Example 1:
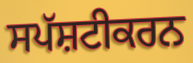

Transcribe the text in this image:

ਸਪੱਸ਼ਟੀਕਰਨ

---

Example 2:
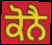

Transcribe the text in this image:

ਕੋਨੈ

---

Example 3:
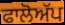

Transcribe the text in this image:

ਫਾਲੋਅੱਪ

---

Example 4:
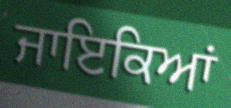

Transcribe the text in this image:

ਜਾਇਕਿਆਂ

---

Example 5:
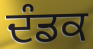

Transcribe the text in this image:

ਦੰਡਕ